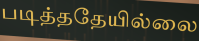
படித்ததேயில்லை